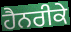
ਹੈਨਰੀਕੇ